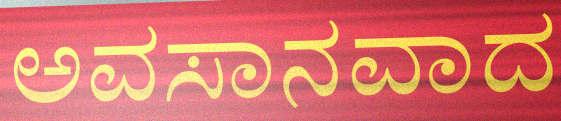
ಅವಸಾನವಾದ